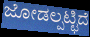
ಜೋಡಲ್ಪಟ್ಟಿದೆ